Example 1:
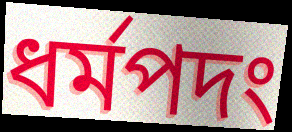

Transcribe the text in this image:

ধর্মপদং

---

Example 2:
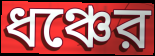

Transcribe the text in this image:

ধঞ্চের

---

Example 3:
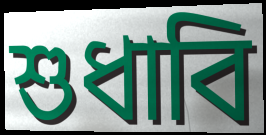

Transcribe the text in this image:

শুধাবি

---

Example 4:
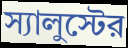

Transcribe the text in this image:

স্যালুস্টের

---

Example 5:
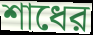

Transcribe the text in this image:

শাধের